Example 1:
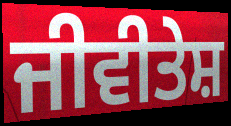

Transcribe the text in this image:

ਜੀਵੀਤੇਸ਼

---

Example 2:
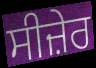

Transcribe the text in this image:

ਸੀਜ਼ੇਰ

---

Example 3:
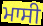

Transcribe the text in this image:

ਮਾਸੀ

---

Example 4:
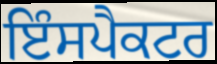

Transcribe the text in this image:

ਇੰਸਪੈਕਟਰ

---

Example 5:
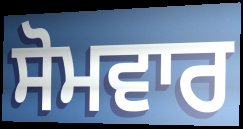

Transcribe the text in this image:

ਸੋਮਵਾਰ